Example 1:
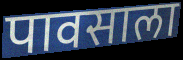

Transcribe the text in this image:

पावसाला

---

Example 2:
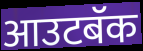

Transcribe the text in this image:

आउटबॅक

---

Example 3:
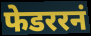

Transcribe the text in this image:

फेडररनं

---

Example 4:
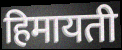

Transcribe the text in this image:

हिमायती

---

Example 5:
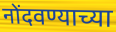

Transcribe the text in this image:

नोंदवण्याच्या